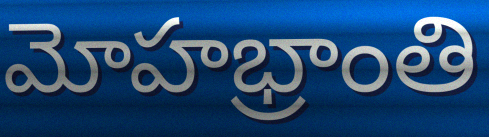
మోహభ్రాంతి